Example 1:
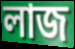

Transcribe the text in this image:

লাজ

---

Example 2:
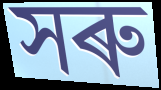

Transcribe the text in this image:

সৰু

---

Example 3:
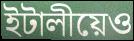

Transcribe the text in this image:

ইটালীয়েও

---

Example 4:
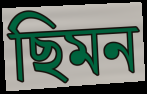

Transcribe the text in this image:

ছিমন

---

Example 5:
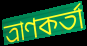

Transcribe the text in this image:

ত্ৰাণকৰ্তা